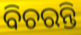
ବିଚରନ୍ତି